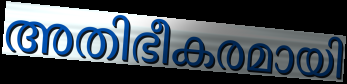
അതിഭീകരമായി